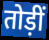
तोड़ीं